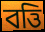
বত্তি